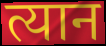
त्यान